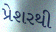
પ્રેશરથી